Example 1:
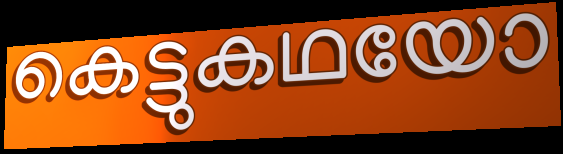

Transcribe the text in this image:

കെട്ടുകഥയോ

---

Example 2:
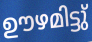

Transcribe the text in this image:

ഊഴമിട്ടു്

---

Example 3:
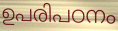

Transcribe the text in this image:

ഉപരിപഠനം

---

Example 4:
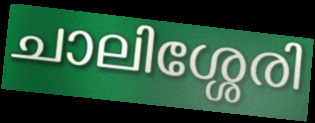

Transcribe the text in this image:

ചാലിശ്ശേരി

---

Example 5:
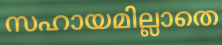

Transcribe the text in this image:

സഹായമില്ലാതെ